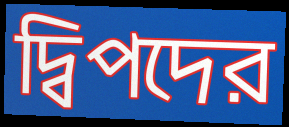
দ্বিপদের